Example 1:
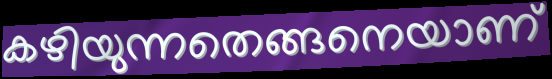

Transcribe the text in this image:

കഴിയുന്നതെങ്ങനെയാണ്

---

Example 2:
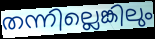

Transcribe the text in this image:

തന്നില്ലെങ്കിലും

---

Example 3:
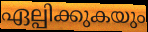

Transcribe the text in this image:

ഏല്പിക്കുകയും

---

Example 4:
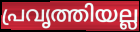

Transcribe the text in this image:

പ്രവൃത്തിയല്ല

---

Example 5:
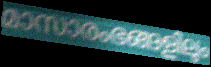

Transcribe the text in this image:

മാസാരംഭങ്ങളിലും